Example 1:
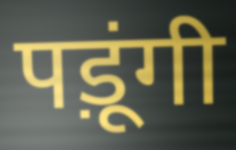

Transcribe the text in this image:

पड़ूंगी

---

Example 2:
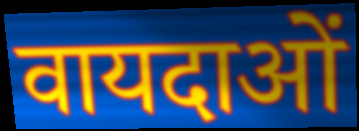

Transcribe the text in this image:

वायदाओं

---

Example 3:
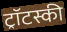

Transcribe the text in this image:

ट्रॉटस्की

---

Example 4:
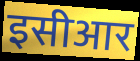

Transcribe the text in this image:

इसीआर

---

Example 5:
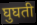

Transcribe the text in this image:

घुघती